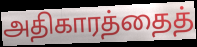
அதிகாரத்தைத்